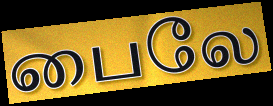
பைலே